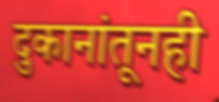
दुकानांतूनही